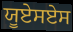
ਯੂਏਸਏਸ